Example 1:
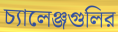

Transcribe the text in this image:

চ্যালেঞ্জগুলির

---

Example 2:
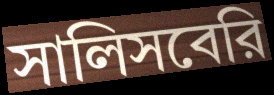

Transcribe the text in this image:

সালিসবেরি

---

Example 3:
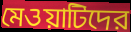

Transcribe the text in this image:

মেওয়াটিদের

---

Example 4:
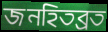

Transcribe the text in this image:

জনহিতব্রত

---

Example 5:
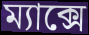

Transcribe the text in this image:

ম্যাক্সে